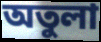
অতুলা